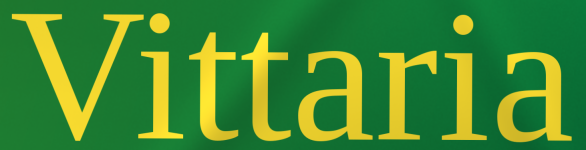
Vittaria